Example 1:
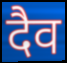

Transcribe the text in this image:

दैव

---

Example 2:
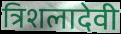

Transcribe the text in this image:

त्रिशलादेवी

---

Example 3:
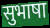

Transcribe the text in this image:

सुभाषा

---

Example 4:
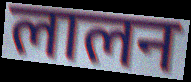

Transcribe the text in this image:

लालन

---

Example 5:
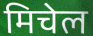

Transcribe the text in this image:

मिचेल